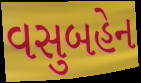
વસુબહેન